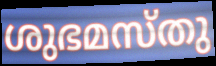
ശുഭമസ്തു